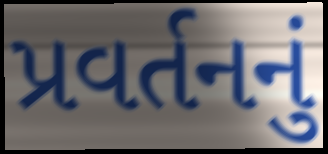
પ્રવર્તનનું